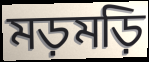
মড়মড়ি